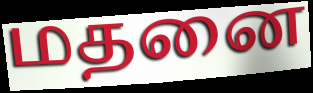
மதனை